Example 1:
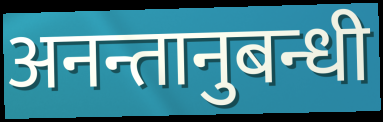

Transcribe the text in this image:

अनन्तानुबन्धी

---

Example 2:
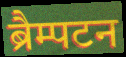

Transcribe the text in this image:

ब्रैम्पटन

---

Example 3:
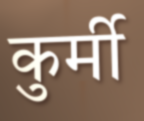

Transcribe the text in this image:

कुर्मी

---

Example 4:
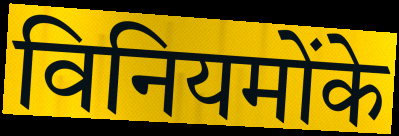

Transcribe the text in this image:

विनियमोंके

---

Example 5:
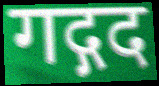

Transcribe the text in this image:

गद्गद